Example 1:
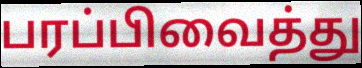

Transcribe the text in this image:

பரப்பிவைத்து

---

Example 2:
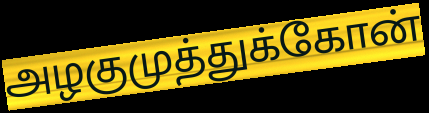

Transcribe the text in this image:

அழகுமுத்துக்கோன்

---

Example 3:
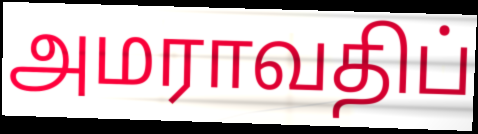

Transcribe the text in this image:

அமராவதிப்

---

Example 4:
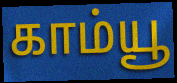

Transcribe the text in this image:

காம்யூ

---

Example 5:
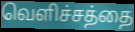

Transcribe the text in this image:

வெளிச்சத்தை